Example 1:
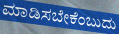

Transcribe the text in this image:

ಮಾಡಿಸಬೇಕೆಂಬುದು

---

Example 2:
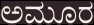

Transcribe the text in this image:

ಅಮೂರ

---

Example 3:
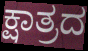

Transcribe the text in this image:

ಕ್ಷಾತ್ರದ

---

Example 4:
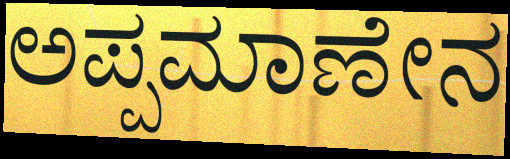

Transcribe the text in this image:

ಅಪ್ಪಮಾಣೇನ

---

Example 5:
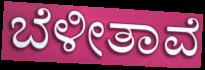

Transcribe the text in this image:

ಬೆಳೀತಾವೆ